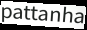
pattanha